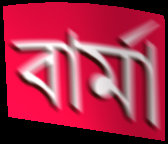
বাৰ্মা